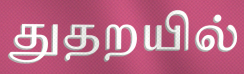
துதறயில்